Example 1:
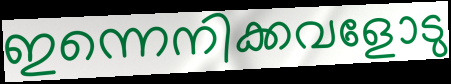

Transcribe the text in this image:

ഇന്നെനിക്കവളോടു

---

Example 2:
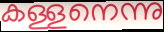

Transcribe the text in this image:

കള്ളനെന്നു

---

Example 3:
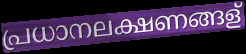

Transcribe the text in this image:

പ്രധാനലക്ഷണങ്ങള്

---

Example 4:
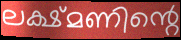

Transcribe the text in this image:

ലക്ഷ്മണിന്റെ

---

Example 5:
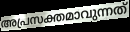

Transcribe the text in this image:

അപ്രസക്തമാവുന്നത്